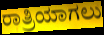
ರಾತ್ರಿಯಾಗಲು